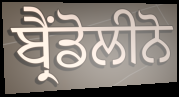
ਬ੍ਰੈਂਡੋਲੀਨੋ